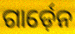
ଗାର୍ଡ଼େନ